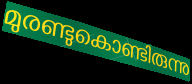
മുരണ്ടുകൊണ്ടിരുന്നു